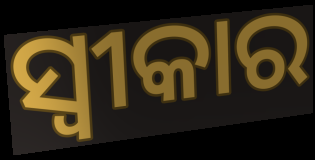
ସ୍ବୀକାର